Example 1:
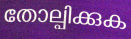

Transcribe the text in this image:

തോല്പിക്കുക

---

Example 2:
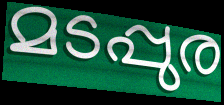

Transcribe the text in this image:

മടപ്പുര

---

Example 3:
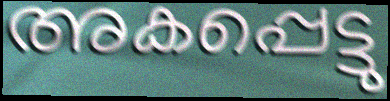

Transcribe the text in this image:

അകപ്പെട്ടു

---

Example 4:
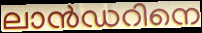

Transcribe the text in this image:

ലാൻഡറിനെ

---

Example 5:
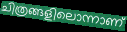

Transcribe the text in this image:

ചിത്രങ്ങളിലൊന്നാണ്